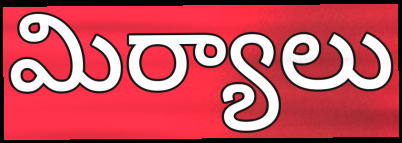
మిర్యాలు